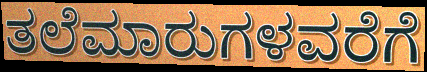
ತಲೆಮಾರುಗಳವರೆಗೆ